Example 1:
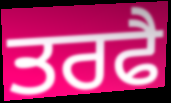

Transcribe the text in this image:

ਤਰਫੈ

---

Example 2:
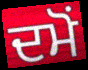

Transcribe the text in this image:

ਦਮੋਂ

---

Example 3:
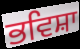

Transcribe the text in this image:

ਭਵਿਸ਼ਾ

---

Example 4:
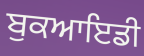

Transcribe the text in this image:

ਬੁਕਆਇਡੀ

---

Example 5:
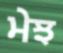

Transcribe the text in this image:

ਮੇਝ